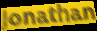
Jonathan